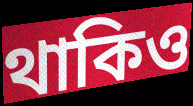
থাকিও